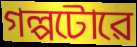
গল্পটোৱে